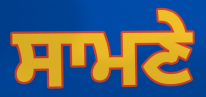
ਸਾਮਣੇ